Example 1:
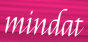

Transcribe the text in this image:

mindat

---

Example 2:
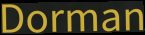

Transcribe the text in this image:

Dorman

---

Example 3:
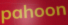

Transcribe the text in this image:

pahoon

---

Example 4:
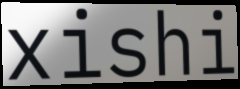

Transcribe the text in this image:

xishi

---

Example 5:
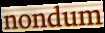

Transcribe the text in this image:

nondum